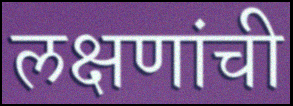
लक्षणांची